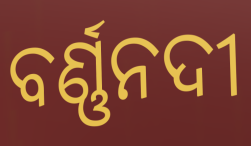
ବର୍ଣ୍ଣନଦୀ